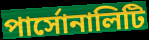
পার্সোনালিটি